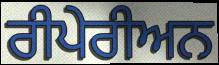
ਰੀਪੇਰੀਅਨ